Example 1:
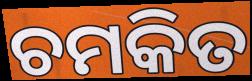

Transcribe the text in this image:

ଚମକିତ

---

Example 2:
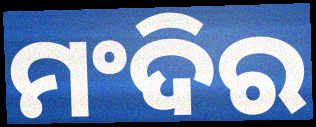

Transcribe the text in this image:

ମଂଦିର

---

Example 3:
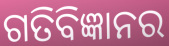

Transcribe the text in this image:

ଗତିବିଜ୍ଞାନର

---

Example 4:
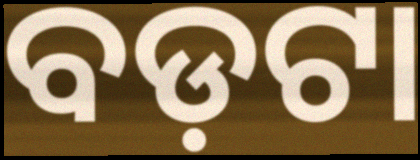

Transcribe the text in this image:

ବଡ଼ଟା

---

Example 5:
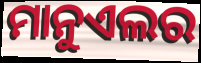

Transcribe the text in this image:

ମାନୁଏଲର